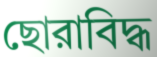
ছোরাবিদ্ধ